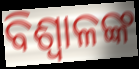
ବିଶ୍ୱାଳଙ୍କ